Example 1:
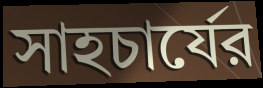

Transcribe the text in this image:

সাহচার্যের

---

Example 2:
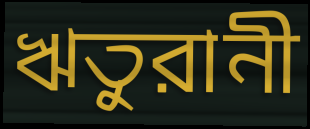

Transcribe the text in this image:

ঋতুরানী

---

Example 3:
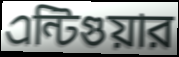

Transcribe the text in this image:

এন্টিগুয়ার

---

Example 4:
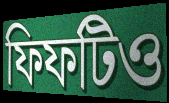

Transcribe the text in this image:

ফিফটিও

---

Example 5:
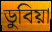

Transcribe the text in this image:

ডুবিয়া